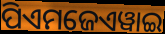
ପିଏମଜେଏୱାଇ